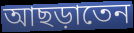
আছড়াতেন